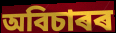
অবিচাৰৰ